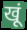
खूं